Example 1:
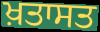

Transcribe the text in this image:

ਖ਼ਤਾਸਤ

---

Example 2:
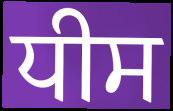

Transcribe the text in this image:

ਧੀਸ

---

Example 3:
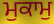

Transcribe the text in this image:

ਮੁਕਾਮੁ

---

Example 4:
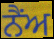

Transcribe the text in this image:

ਨੈਂਅ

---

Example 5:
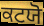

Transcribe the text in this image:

ਕਟਯੋ